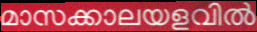
മാസക്കാലയളവിൽ